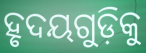
ହୃଦୟଗୁଡ଼ିକୁ